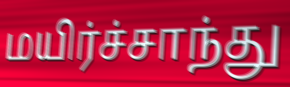
மயிர்ச்சாந்து